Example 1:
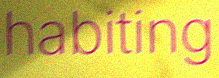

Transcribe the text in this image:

habiting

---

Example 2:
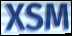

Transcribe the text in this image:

XSM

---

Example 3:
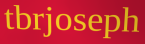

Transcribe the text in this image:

tbrjoseph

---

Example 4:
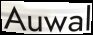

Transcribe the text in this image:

Auwal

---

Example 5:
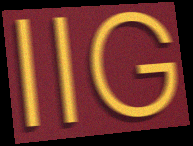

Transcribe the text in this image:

IIG